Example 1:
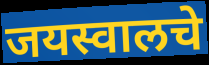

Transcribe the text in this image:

जयस्वालचे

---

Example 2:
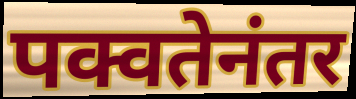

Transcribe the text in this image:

पक्वतेनंतर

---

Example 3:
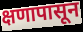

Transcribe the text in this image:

क्षणापासून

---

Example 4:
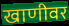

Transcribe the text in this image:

खाणीवर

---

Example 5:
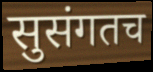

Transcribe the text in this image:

सुसंगतच